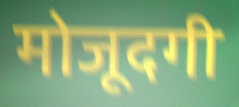
मोजूदगी